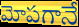
మోపగానే